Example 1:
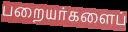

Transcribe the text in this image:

பறையர்களைப்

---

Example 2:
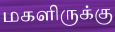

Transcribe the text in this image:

மகளிருக்கு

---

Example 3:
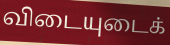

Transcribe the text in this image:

விடையுடைக்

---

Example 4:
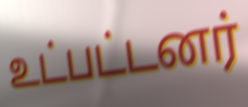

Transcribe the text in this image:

உட்பட்டனர்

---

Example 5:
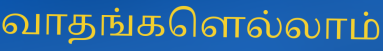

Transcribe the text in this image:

வாதங்களெல்லாம்